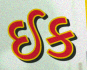
ઈક